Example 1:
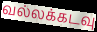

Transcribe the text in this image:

வல்லக்கடவு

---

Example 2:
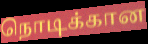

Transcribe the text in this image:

நொடிக்கான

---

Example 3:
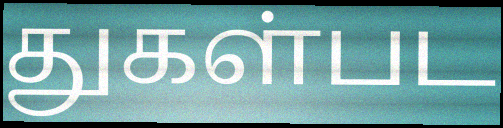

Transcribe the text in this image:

துகள்பட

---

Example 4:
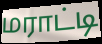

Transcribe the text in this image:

மராட்டி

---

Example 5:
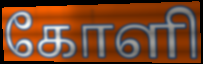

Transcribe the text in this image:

கோளி